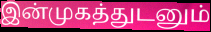
இன்முகத்துடனும்